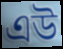
এউ